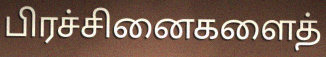
பிரச்சினைகளைத்